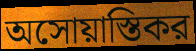
অসোয়াস্তিকর